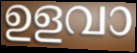
ഉളവാ